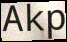
Akp